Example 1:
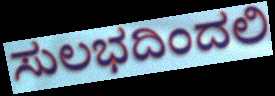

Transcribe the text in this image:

ಸುಲಭದಿಂದಲಿ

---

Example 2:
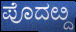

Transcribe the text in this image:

ಪೊದೞ್ದ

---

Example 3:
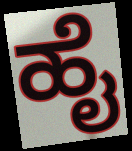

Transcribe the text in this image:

ಹೈ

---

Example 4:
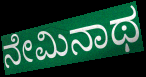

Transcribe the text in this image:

ನೇಮಿನಾಥ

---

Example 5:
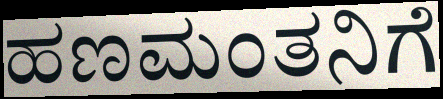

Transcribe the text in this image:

ಹಣಮಂತನಿಗೆ